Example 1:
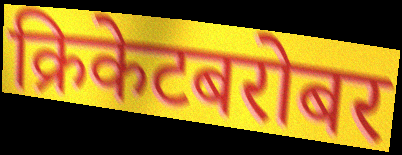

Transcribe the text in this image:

क्रिकेटबरोबर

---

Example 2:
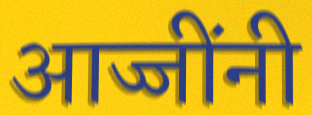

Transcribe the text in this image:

आज्जींनी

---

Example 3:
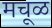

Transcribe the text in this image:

मचूळ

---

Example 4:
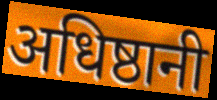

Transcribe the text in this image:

अधिष्ठानी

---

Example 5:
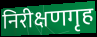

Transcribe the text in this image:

निरीक्षणगृह